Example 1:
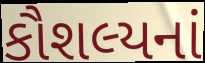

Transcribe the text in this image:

કૌશલ્યનાં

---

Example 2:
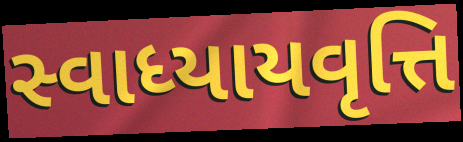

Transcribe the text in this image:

સ્વાધ્યાયવૃત્તિ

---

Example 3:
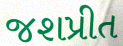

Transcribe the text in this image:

જશપ્રીત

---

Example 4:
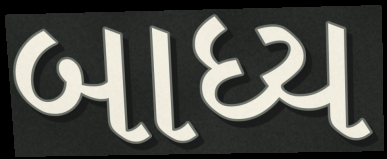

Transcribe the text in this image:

બાધ્ય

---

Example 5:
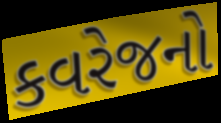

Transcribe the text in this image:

કવરેજનો